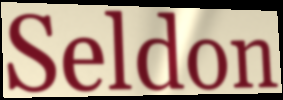
Seldon